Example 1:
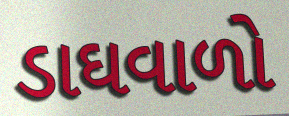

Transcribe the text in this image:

ડાઘવાળો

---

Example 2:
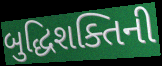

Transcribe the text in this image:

બુદ્ધિશક્તિની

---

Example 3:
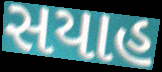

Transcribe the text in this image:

સયાહ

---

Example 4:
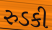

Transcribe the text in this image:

રુડકી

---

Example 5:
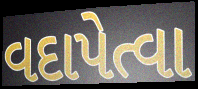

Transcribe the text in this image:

વદાપેત્વા